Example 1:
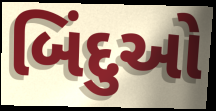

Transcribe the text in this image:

બિંદુઓ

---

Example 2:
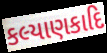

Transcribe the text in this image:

કલ્યાણકાદિ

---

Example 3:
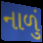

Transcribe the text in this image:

નાળું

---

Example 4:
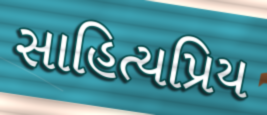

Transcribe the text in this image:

સાહિત્યપ્રિય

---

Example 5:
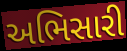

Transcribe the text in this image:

અભિસારી